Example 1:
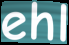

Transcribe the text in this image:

ehl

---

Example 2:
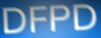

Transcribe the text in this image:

DFPD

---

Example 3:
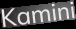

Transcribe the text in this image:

Kamini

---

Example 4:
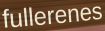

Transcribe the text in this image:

fullerenes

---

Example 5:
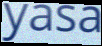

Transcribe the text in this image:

yasa